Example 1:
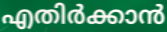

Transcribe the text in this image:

എതിർക്കാൻ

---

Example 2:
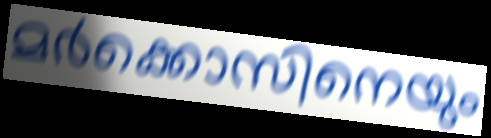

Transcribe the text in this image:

മർക്കൊസിനെയും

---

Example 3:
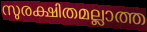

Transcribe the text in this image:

സുരക്ഷിതമല്ലാത്ത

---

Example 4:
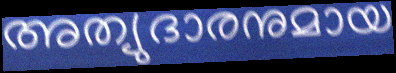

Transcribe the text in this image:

അത്യുദാരനുമായ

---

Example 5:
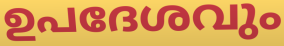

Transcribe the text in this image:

ഉപദേശവും